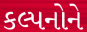
કલ્પનોને